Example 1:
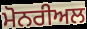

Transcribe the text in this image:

ਮੋਨਰੀਅਲ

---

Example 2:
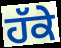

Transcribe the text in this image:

ਹੱਕੇ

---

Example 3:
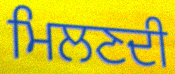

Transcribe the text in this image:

ਮਿਲਣਦੀ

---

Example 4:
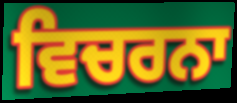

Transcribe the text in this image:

ਵਿਚਰਨਾ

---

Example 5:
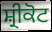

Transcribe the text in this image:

ਸ਼੍ਰੀਕੋਟ